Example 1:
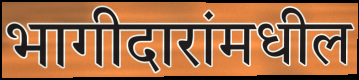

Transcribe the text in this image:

भागीदारांमधील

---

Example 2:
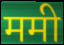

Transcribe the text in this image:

ममी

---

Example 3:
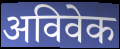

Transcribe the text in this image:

अविवेक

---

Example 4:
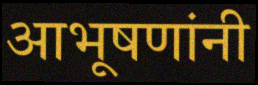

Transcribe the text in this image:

आभूषणांनी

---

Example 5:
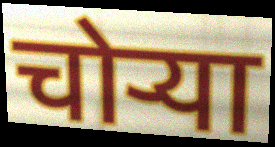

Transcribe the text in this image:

चोऱ्या